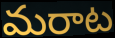
మరాట